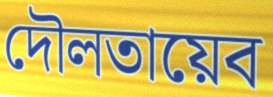
দৌলতায়েব